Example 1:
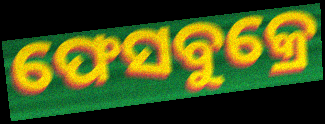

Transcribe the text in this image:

ଫେସବୁକ୍ରେ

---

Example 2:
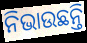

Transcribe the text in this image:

ନିଭାଉଛନ୍ତି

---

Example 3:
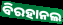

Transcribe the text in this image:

ବିରହାନଲ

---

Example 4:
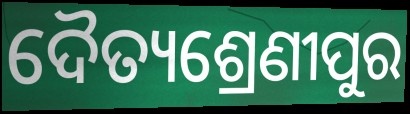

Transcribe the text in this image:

ଦୈତ୍ୟଶ୍ରେଣୀପୁର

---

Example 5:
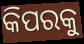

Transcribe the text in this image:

କିପରକୁ